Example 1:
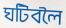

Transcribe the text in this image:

ঘটিবলৈ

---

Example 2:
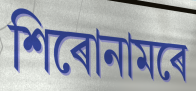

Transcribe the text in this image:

শিৰোনামৰে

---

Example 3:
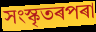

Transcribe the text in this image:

সংস্কৃতৰপৰা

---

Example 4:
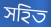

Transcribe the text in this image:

সহিত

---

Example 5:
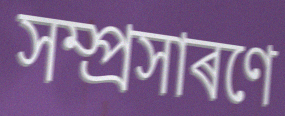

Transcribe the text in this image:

সম্প্ৰসাৰণে